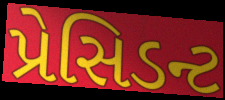
પ્રેસિડન્ટ